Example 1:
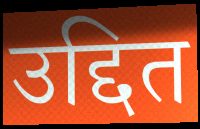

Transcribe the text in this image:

उद्दित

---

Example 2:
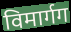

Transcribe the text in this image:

विमार्गग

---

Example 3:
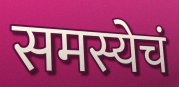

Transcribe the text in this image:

समस्येचं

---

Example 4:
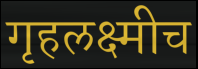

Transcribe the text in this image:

गृहलक्ष्मीच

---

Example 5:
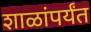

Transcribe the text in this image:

शाळांपर्यंत